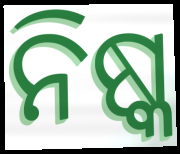
ନିଷ୍କ